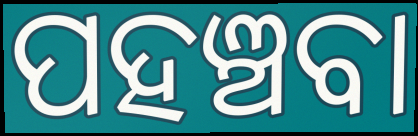
ପହଞ୍ଚବା